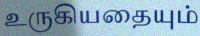
உருகியதையும்